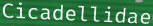
Cicadellidae